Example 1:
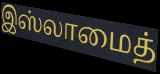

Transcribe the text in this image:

இஸ்லாமைத்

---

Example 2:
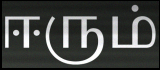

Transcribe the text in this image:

ஈரும்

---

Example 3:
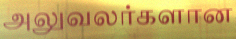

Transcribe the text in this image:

அலுவலர்களான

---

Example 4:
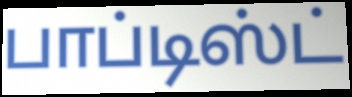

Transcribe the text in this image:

பாப்டிஸ்ட்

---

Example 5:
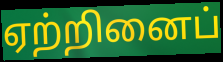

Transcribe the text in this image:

ஏற்றினைப்